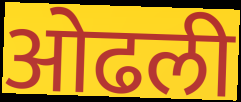
ओढली